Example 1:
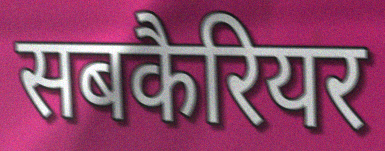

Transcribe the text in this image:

सबकैरियर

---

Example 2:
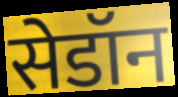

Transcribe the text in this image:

सेडॉन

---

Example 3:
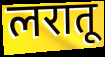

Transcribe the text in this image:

लरातू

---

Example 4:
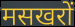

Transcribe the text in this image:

मसखरों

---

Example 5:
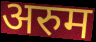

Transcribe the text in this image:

अरुम